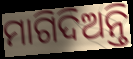
ମାଗିଦିଅନ୍ତି